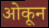
ओकून